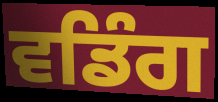
ਵਡਿੰਗ